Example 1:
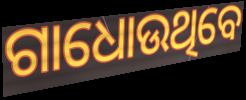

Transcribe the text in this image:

ଗାଧୋଉଥିବେ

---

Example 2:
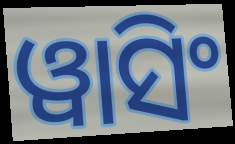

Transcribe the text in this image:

ୱାସିଂ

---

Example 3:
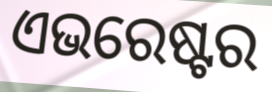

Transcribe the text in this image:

ଏଭରେଷ୍ଟର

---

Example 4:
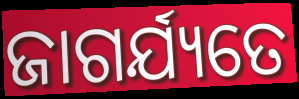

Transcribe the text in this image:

ଜାଗର୍ଯ୍ୟତେ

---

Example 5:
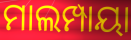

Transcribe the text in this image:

ମାଲମ୍ପାୟା